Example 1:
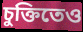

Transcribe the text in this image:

চুক্তিতেও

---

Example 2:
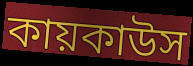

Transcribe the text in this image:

কায়কাউস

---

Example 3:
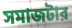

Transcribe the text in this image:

সমাজটার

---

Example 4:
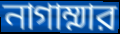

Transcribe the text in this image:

নাগাম্মার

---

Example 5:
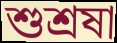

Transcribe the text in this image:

শুশ্রষা